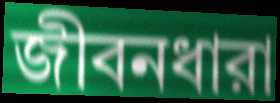
জীবনধারা